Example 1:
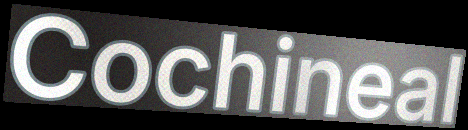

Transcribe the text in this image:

Cochineal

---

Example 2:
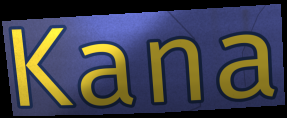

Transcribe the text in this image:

Kana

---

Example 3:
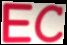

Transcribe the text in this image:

EC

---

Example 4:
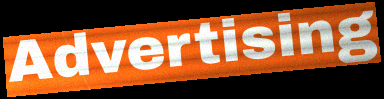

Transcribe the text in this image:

Advertising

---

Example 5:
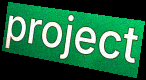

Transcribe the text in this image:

project